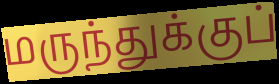
மருந்துக்குப்